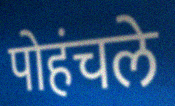
पोहंचले